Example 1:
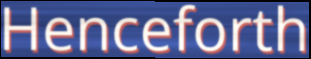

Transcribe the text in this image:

Henceforth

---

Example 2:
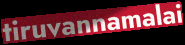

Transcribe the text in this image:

tiruvannamalai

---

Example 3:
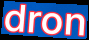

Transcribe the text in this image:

dron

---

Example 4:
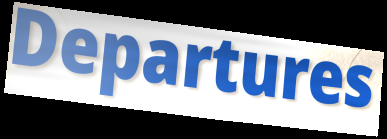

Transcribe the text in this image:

Departures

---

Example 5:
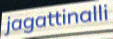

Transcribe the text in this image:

jagattinalli